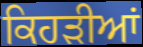
ਕਿਹੜੀਆਂ